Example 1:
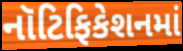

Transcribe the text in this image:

નૉટિફિકેશનમાં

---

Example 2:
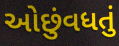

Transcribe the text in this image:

ઓછુંવધતું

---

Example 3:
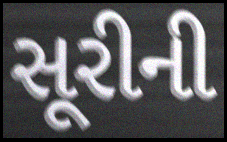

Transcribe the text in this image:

સૂરીની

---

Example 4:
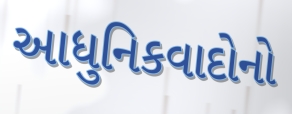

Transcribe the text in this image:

આધુનિકવાદોનો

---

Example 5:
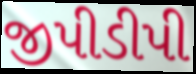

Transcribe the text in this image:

જીપીડીપી